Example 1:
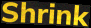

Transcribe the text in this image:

Shrink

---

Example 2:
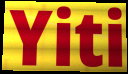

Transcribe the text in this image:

Yiti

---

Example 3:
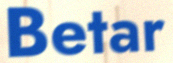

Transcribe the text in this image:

Betar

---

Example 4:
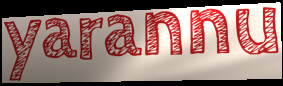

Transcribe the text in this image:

yarannu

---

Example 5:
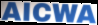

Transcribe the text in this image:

AICWA